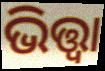
ଭିତ୍ତ୍ୱା